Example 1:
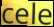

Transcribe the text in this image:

cele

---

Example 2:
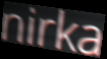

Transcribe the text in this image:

nirka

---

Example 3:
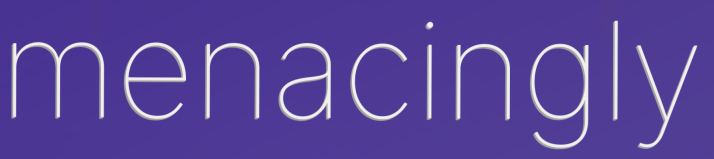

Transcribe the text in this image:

menacingly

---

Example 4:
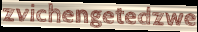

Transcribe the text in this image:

zvichengetedzwe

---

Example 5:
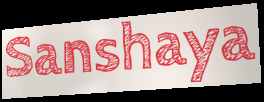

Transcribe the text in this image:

Sanshaya